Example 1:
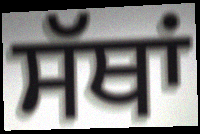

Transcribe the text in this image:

ਸੱਥਾਂ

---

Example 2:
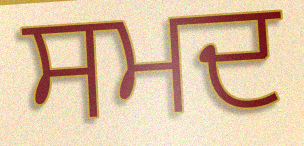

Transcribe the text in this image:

ਸਮਦ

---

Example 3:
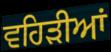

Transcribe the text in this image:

ਵਹਿੜੀਆਂ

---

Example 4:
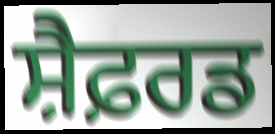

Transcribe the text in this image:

ਸ਼ੈਫ਼ਰਡ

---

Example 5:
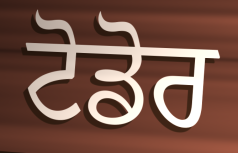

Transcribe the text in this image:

ਟੋਡੋਰ